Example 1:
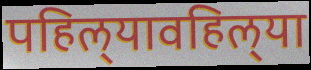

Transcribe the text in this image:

पहिल्यावहिल्या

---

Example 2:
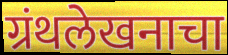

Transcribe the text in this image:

ग्रंथलेखनाचा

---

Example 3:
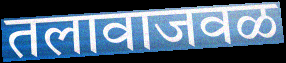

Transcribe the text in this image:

तलावाजवळ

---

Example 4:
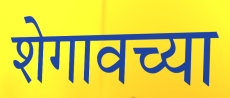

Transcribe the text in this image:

शेगावच्या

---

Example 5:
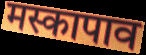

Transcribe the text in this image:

मस्कापाव